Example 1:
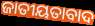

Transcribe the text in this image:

ଜାତୀୟତାବାଦ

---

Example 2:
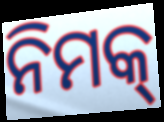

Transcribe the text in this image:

ନିମକ୍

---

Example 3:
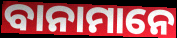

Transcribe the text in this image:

ବାନାମାନେ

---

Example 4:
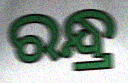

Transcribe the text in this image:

ରନ୍ଧ୍ର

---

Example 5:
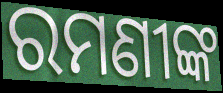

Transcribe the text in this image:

ରମଣୀଙ୍କ